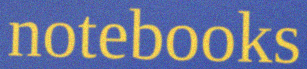
notebooks